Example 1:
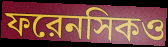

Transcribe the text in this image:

ফরেনসিকও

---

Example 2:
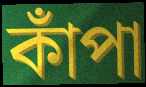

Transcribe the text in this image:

কাঁপা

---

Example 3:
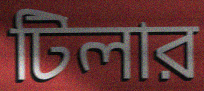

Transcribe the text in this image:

টিলার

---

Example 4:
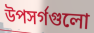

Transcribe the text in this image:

উপসর্গগুলো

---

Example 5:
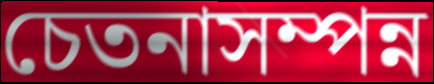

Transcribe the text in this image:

চেতনাসম্পন্ন